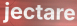
jectare